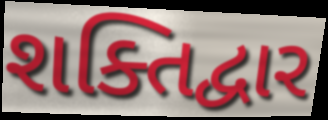
શક્તિદ્વાર